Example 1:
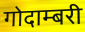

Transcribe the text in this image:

गोदाम्बरी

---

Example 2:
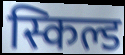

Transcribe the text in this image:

स्किल्ड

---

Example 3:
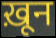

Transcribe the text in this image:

ख़ून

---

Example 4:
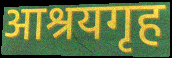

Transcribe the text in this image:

आश्रयगृह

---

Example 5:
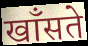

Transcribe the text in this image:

खाँसते